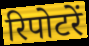
रिपोटरें